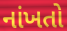
નાંખતો